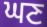
ਘਣ